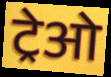
ट्रेओ